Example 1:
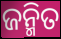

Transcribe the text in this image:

ଜନ୍ମିତ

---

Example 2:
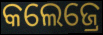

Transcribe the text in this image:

କଲେଜ୍ରେ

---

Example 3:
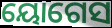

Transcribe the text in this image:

ୟୋଗେସ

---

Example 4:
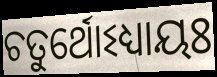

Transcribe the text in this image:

ଚତୁର୍ଥୋଽଧ୍ୟାୟଃ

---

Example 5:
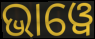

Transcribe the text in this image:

ଭାୱେ